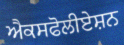
ਐਕਸਫੋਲੀਏਸ਼ਨ